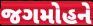
જગમોહને